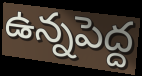
ఉన్నపెద్ద